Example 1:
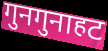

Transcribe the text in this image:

गुनगुनाहट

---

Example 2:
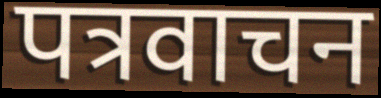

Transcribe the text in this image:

पत्रवाचन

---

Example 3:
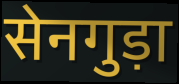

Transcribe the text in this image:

सेनगुड़ा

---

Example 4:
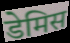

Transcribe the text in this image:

डेमिस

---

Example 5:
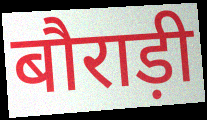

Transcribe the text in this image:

बौराड़ी